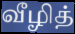
வீழித்